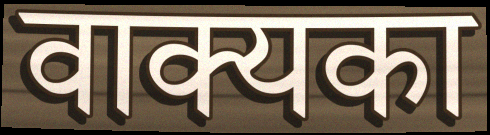
वाक्यका